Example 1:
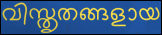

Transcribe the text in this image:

വിസ്തൃതങ്ങളായ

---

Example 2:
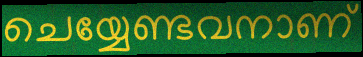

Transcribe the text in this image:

ചെയ്യേണ്ടവനാണ്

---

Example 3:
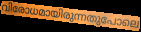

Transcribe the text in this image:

വിരോധമായിരുന്നതുപോലെ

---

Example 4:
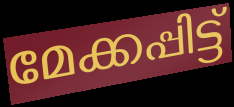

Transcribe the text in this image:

മേക്കപ്പിട്ട്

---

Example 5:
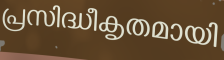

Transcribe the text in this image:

പ്രസിദ്ധീകൃതമായി